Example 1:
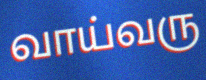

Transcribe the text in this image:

வாய்வரு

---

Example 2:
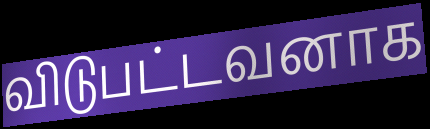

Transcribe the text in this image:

விடுபட்டவனாக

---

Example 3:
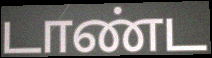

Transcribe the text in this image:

டாண்ட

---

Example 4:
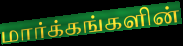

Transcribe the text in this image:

மார்க்கங்களின்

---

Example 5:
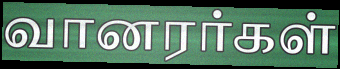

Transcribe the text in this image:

வானரர்கள்